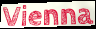
Vienna